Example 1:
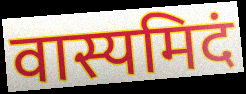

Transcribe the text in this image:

वास्यमिदं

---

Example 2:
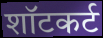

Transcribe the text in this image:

शॉटकर्ट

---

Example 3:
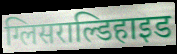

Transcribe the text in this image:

ग्लिसराल्डिहाइड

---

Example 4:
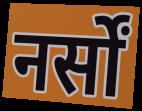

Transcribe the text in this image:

नर्सों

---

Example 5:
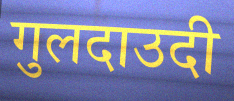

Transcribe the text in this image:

गुलदाउदी